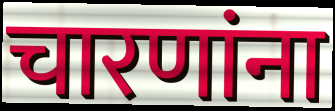
चारणांना